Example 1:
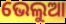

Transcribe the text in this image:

ଭେଲୁଆ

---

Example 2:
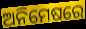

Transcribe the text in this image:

ଅନିମେଷରେ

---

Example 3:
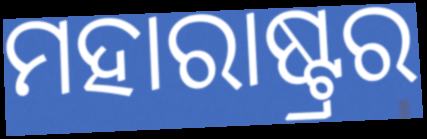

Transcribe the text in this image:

ମହାରାଷ୍ଟ୍ରର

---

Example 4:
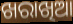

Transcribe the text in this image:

ଖରାଖିଆ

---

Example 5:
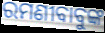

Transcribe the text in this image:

ରମଣୀବାବୁଙ୍କ